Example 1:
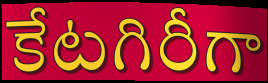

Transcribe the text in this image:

కేటగిరీగా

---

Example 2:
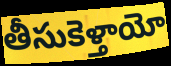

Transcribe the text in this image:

తీసుకెళ్తాయో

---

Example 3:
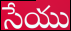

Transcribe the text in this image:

సేయు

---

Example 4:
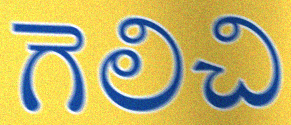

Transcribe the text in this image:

గెలిచి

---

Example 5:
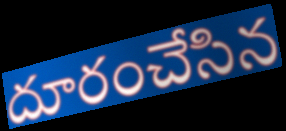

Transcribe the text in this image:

దూరంచేసిన